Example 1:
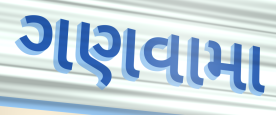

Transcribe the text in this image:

ગણવામા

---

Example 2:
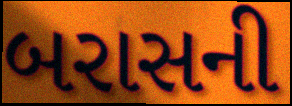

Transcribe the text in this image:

બરાસની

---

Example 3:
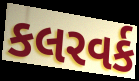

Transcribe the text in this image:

કલરવર્ક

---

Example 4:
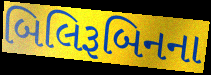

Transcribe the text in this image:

બિલિરૂબિનના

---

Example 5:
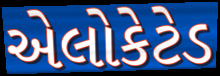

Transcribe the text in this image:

એલોકેટેડ